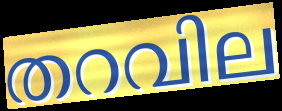
തറവില